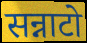
सन्नाटो